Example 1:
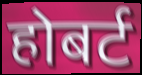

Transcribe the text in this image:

होबर्ट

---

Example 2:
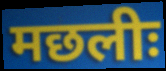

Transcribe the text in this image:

मछलीः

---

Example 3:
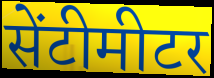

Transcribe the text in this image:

सेंटीमीटर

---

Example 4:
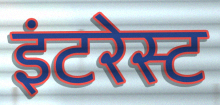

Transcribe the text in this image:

इंटरेस्ट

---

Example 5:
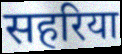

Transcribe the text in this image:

सहरिया